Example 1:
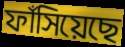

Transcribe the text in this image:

ফাঁসিয়েছে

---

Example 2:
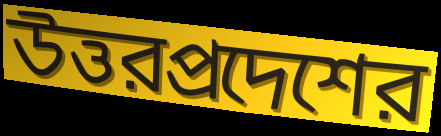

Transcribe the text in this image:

উত্তরপ্রদেশের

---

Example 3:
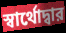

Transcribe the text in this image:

স্বার্থোদ্বার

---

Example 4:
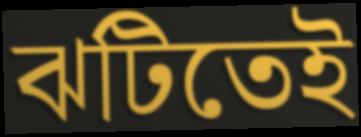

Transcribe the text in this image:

ঝটিতেই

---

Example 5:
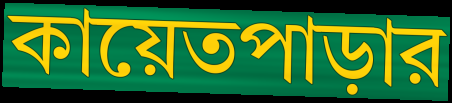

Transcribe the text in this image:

কায়েতপাড়ার